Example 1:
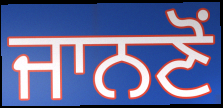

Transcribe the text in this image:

ਜਾਨਣੋਂ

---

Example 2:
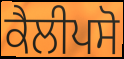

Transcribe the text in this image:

ਕੈਲੀਪਸੋ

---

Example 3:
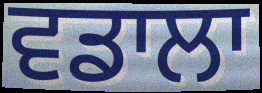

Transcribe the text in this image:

ਵਡਾਲਾ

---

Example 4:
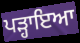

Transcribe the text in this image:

ਪੜ੍ਹਾਇਆ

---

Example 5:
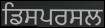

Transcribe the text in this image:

ਡਿਸਪਰਸਲ